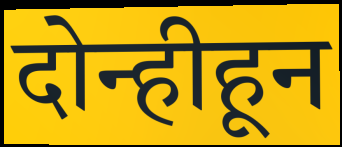
दोन्हीहून